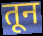
तून